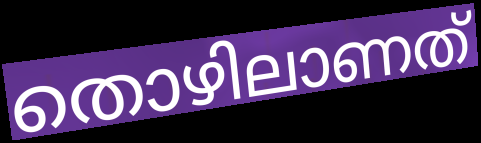
തൊഴിലാണത്